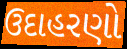
ઉદાહરણો